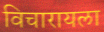
विचारायला